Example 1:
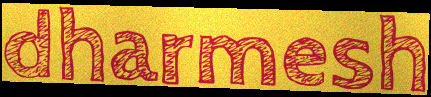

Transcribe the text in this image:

dharmesh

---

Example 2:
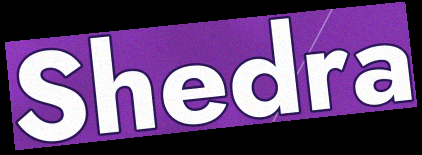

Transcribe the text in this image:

Shedra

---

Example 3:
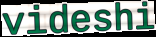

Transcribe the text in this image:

videshi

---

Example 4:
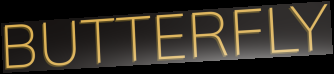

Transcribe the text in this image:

BUTTERFLY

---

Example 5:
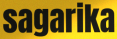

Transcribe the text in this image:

sagarika